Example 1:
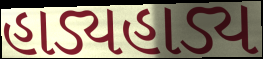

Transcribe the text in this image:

હાડ્યહાડ્ય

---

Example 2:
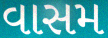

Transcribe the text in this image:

વાસમ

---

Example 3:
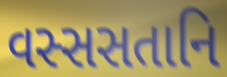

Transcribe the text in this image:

વસ્સસતાનિ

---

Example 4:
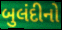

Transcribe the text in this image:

બુલંદીનો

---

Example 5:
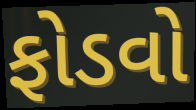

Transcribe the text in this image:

ફોડવો